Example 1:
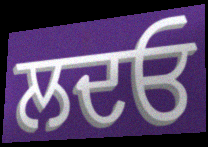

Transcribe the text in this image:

ਲਦਓ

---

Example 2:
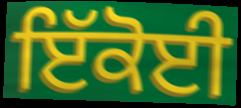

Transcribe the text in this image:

ਇੱਕੋਈ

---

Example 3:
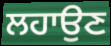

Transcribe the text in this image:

ਲਹਾਉਣ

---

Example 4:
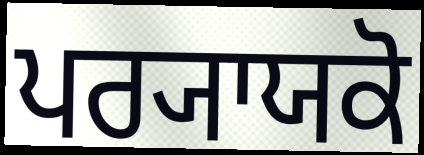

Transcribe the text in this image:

ਪਰ੍ਯਾਯਕੋ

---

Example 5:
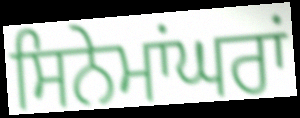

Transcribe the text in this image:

ਸਿਨੇਮਾਂਘਰਾਂ